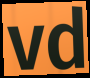
vd